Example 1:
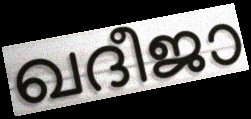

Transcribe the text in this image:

ഖദീജാ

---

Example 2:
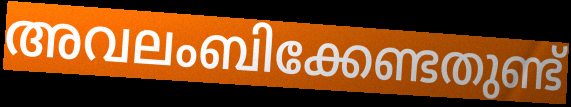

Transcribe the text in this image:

അവലംബിക്കേണ്ടതുണ്ട്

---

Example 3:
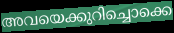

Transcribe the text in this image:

അവയെക്കുറിച്ചൊക്കെ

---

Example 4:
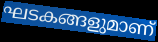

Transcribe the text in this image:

ഘടകങ്ങളുമാണ്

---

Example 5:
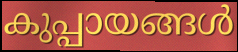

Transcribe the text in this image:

കുപ്പായങ്ങൾ